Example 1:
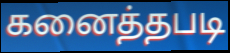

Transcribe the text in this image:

கனைத்தபடி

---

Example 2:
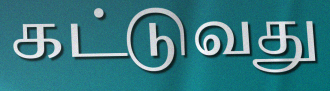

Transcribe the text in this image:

கட்டுவது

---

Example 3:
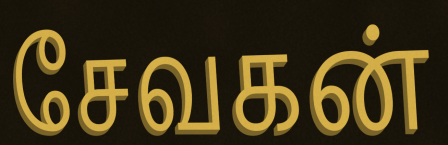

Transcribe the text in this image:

சேவகன்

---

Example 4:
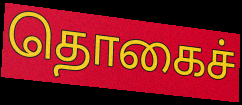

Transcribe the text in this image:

தொகைச்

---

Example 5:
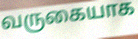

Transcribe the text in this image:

வருகையாக